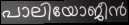
പാലിയോജീൻ